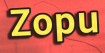
Zopu